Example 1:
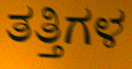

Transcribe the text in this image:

ತತ್ತಿಗಳ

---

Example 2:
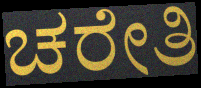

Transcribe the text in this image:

ಚರೇತಿ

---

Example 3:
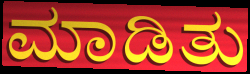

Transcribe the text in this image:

ಮಾಡಿತು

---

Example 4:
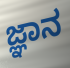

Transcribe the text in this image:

ಜ್ಞಾನ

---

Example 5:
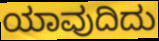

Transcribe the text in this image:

ಯಾವುದಿದು